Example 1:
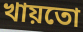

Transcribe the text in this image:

খায়তো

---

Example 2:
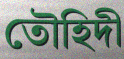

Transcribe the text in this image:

তৌহিদী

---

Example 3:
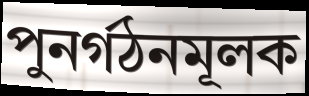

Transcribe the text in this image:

পুনর্গঠনমূলক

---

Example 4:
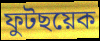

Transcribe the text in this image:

ফুটছয়েক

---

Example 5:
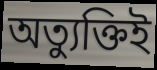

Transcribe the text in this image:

অত্যুক্তিই